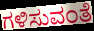
ಗಳಿಸುವಂತೆ